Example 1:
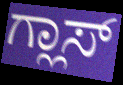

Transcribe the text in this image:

ಗ್ಲಾಸ್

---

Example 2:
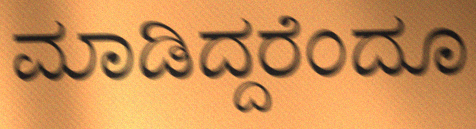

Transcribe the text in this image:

ಮಾಡಿದ್ದರೆಂದೂ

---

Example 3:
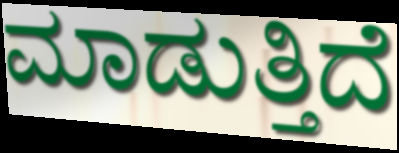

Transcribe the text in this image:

ಮಾಡುತ್ತಿದೆ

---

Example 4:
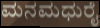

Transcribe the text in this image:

ಮನಮಧುರೈ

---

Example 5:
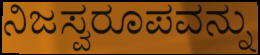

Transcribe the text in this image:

ನಿಜಸ್ವರೂಪವನ್ನು